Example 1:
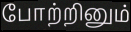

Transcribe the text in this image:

போற்றினும்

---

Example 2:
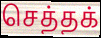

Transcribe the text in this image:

செத்தக்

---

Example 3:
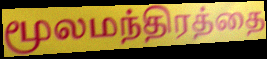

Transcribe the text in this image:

மூலமந்திரத்தை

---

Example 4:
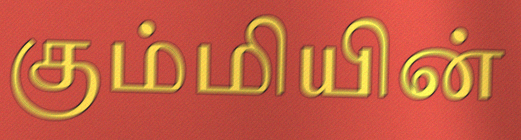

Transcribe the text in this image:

கும்மியின்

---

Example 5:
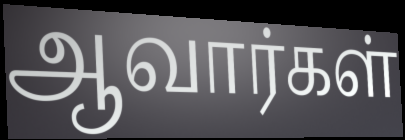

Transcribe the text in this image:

ஆவார்கள்